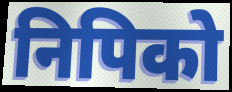
निपिको